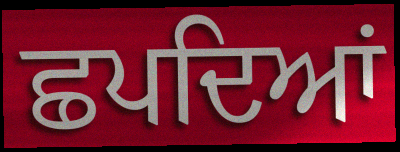
ਛਪਦਿਆਂ